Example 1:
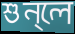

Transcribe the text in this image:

শুন্‌লে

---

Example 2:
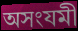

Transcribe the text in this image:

অসংযমী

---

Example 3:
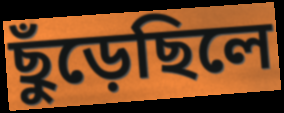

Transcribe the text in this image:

ছুঁড়েছিলে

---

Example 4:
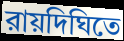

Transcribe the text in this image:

রায়দিঘিতে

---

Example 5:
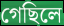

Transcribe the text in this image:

গেছিলে